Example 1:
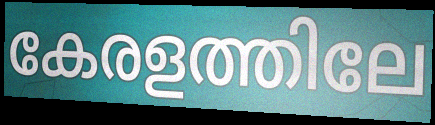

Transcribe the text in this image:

കേരളത്തിലേ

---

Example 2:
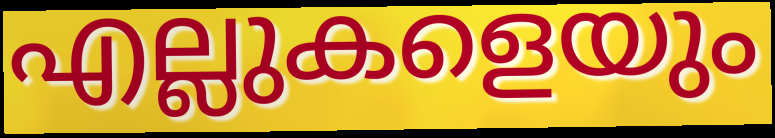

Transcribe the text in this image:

എല്ലുകളെയും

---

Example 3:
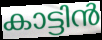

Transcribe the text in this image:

കാട്ടിൻ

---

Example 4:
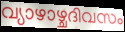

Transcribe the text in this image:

വ്യാഴാഴ്ചദിവസം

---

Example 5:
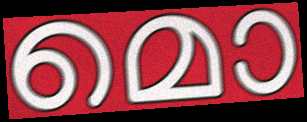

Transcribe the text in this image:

മൊ